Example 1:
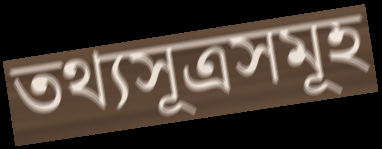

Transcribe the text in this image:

তথ্যসূত্ৰসমূহ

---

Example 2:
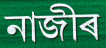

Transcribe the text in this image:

নাজীৰ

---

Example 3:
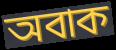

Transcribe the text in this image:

অবাক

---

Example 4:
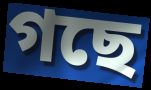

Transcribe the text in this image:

গছে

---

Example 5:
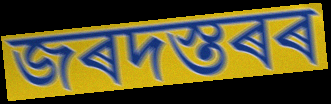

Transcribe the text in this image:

জৰদস্তৰৰ